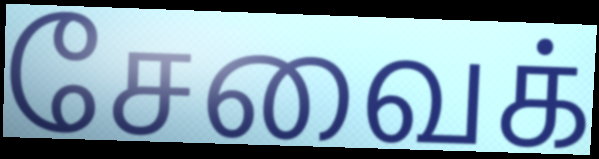
சேவைக்